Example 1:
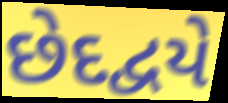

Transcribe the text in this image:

છેદદ્વયે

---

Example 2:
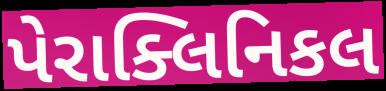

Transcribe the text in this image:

પેરાક્લિનિકલ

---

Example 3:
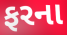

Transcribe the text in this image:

ફરના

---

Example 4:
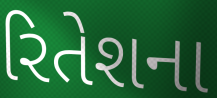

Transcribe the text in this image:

રિતેશના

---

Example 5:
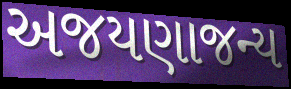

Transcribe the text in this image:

અજયણાજન્ય